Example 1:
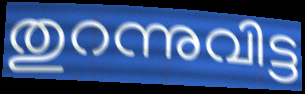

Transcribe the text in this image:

തുറന്നുവിട്ട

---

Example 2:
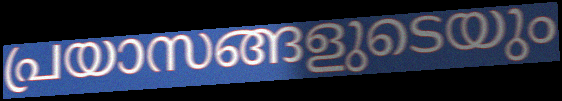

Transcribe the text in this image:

പ്രയാസങ്ങളുടെയും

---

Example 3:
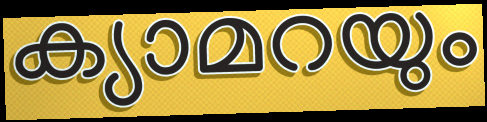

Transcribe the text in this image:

ക്യാമറയും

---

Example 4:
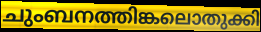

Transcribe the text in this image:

ചുംബനത്തിങ്കലൊതുക്കി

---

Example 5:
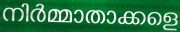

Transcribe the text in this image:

നിർമ്മാതാക്കളെ